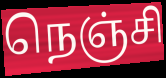
நெஞ்சி